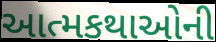
આત્મકથાઓની